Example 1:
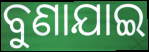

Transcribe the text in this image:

ବୁଣାଯାଇ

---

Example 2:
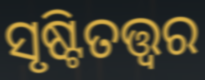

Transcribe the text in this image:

ସୃଷ୍ଟିତତ୍ତ୍ୱର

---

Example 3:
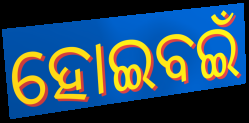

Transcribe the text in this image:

ହୋଇବଇଁ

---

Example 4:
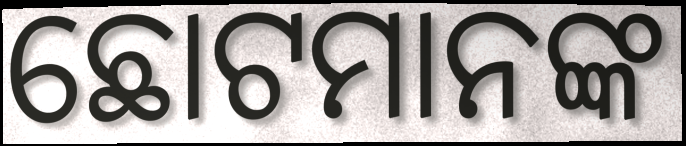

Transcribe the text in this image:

ଛୋଟମାନଙ୍କ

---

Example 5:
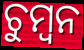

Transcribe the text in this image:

ଚୁମ୍ୱନ